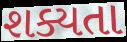
શક્યતા